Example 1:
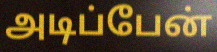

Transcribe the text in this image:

அடிப்பேன்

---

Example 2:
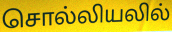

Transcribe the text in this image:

சொல்லியலில்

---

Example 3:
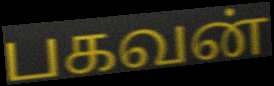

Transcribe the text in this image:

பகவன்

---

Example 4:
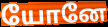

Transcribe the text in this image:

யோனே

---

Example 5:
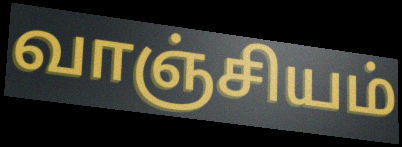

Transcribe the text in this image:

வாஞ்சியம்